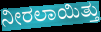
ನೀರಲಾಯಿತ್ತು